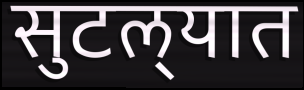
सुटल्यात